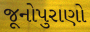
જૂનોપુરાણો